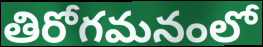
తిరోగమనంలో